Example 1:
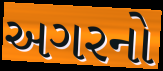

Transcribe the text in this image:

અગરનો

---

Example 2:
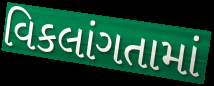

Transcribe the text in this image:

વિકલાંગતામાં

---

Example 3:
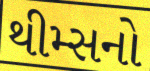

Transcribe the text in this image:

થીમ્સનો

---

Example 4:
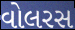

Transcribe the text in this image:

વોલરસ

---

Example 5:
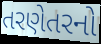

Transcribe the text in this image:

તરણેતરનો